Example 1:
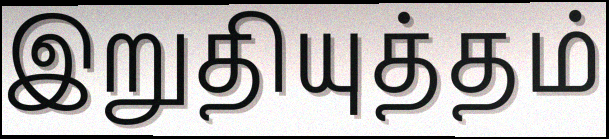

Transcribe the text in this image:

இறுதியுத்தம்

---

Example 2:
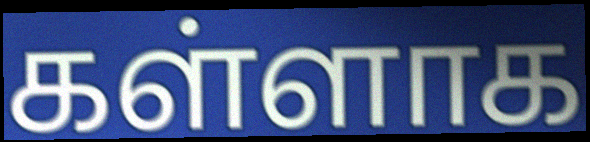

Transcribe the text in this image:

கள்ளாக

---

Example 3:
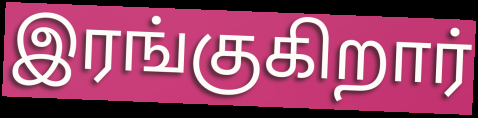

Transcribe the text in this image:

இரங்குகிறார்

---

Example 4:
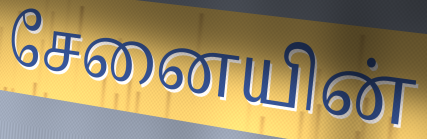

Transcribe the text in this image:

சேனையின்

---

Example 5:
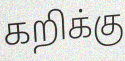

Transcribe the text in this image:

கறிக்கு